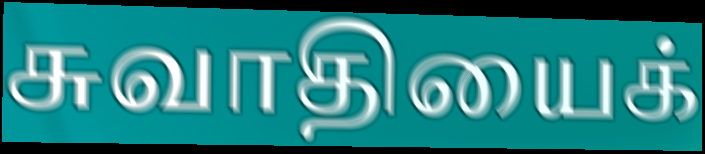
சுவாதியைக்